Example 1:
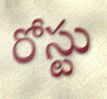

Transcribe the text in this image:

రోస్టు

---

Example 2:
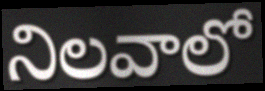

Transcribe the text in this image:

నిలవాలో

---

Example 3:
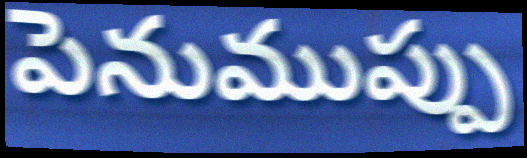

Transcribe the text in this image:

పెనుముప్పు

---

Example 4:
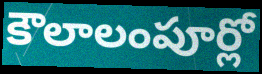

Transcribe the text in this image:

కౌలాలంపూర్లో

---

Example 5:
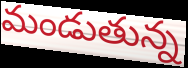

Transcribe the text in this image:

మండుతున్న